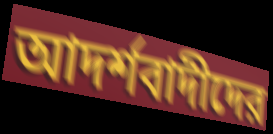
আদর্শবাদীদের